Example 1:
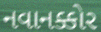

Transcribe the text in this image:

નવાનક્કોર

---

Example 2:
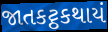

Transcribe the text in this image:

જાતકટ્ઠકથાયં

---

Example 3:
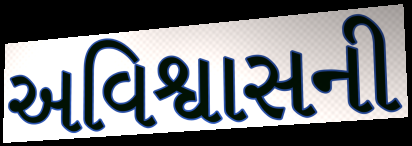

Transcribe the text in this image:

અવિશ્વાસની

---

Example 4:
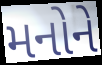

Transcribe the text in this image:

મનોને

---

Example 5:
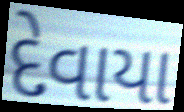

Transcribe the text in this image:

દેવાયા